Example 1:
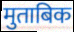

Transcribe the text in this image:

मुताबिक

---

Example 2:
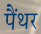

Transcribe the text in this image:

पैंथर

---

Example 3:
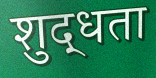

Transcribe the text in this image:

शुद्धता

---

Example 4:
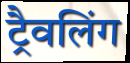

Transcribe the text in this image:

ट्रैवलिंग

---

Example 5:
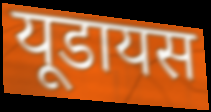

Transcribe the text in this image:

यूडायस